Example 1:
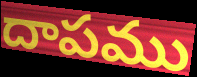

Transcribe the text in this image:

దాపము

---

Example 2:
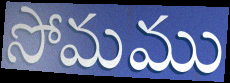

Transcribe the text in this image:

సోమము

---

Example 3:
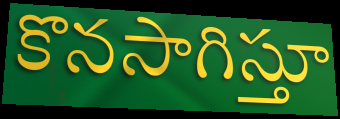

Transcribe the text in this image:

కొనసాగిస్తూ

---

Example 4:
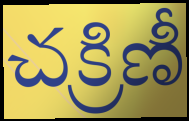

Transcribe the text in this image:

చక్రిణీ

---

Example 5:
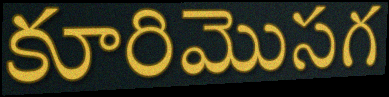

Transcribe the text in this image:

కూరిమొసగ